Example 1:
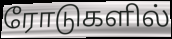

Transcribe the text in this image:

ரோடுகளில்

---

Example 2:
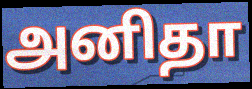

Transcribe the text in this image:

அனிதா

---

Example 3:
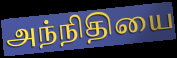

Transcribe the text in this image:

அந்நிதியை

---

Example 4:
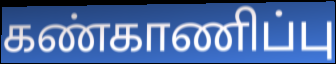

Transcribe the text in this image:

கண்காணிப்பு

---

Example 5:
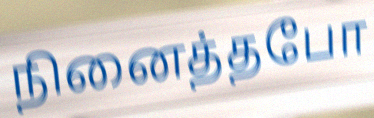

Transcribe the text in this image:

நினைத்தபோ